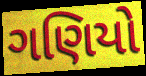
ગણિયો